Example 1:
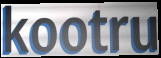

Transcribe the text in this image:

kootru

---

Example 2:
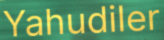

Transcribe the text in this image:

Yahudiler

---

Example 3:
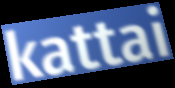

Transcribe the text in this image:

kattai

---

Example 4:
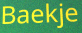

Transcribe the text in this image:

Baekje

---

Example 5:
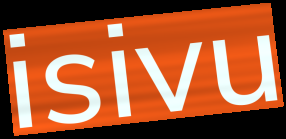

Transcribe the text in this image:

isivu